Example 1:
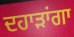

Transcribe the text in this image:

ਦਹਾੜਾਂਗਾ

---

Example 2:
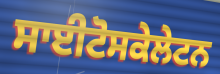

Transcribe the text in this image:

ਸਾਈਟੋਸਕੇਲੇਟਨ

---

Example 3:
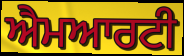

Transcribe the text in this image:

ਐਮਆਰਟੀ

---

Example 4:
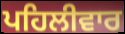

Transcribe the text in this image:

ਪਹਿਲੀਵਾਰ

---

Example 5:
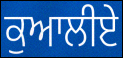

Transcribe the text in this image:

ਕੁਆਲੀਏ